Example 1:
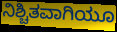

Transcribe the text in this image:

ನಿಶ್ಚಿತವಾಗಿಯೂ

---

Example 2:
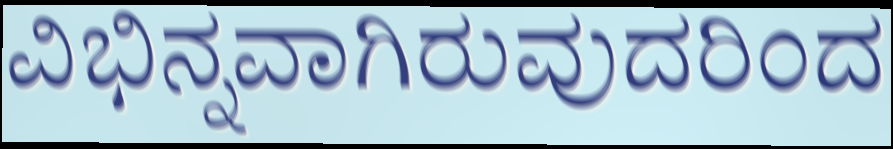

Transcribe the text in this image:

ವಿಭಿನ್ನವಾಗಿರುವುದರಿಂದ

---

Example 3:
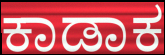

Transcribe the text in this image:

ಕಾಡಾಕ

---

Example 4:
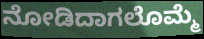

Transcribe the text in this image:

ನೋಡಿದಾಗಲೊಮ್ಮೆ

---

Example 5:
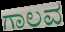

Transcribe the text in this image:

ಗಾಲವ